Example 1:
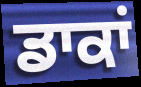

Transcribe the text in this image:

ਡਾਕਾਂ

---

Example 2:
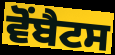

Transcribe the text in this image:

ਵੋਂਬੈਟਸ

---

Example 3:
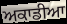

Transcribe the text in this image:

ਅਕਾਡੀਆ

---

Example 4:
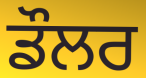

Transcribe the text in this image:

ਡੌਲਰ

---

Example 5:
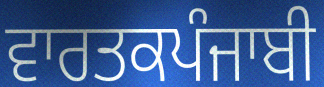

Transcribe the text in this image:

ਵਾਰਤਕਪੰਜਾਬੀ